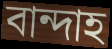
বান্দাহ